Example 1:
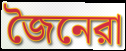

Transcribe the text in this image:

জৈনেরা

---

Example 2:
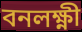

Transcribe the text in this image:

বনলক্ষ্ণী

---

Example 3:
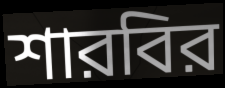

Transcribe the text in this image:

শারবির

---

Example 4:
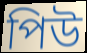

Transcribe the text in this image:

পিউ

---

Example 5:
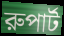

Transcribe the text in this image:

রুপার্ট